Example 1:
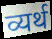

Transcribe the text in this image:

व्यर्थ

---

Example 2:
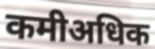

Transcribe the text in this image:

कमीअधिक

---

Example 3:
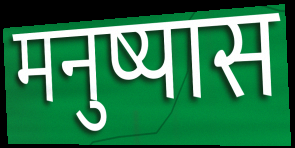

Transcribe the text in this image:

मनुष्यास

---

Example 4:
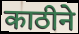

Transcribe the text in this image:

काठीने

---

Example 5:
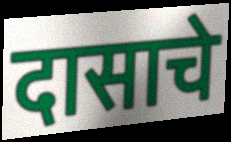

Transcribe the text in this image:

दासाचे